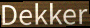
Dekker